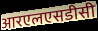
आरएलएसडीसी